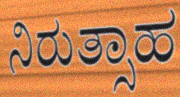
ನಿರುತ್ಸಾಹ